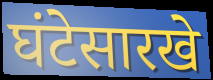
घंटेसारखे